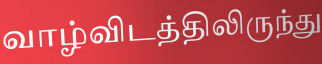
வாழ்விடத்திலிருந்து